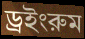
ড্রইংরুম